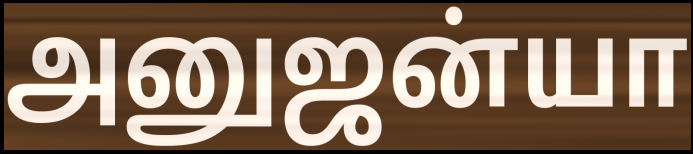
அனுஜன்யா